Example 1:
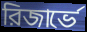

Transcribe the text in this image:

রিজার্ভে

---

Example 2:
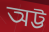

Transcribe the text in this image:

অট্ট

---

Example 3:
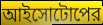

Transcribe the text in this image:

আইসোটোপের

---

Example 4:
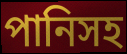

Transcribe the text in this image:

পানিসহ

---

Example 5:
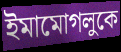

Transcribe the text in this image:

ইমামোগলুকে